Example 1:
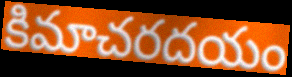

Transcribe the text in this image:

కిమాచరదయం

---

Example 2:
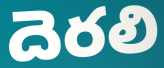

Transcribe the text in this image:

దెరలి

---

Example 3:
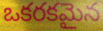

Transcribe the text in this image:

ఒకరకమైన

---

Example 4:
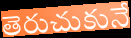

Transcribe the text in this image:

తెరుచుకునే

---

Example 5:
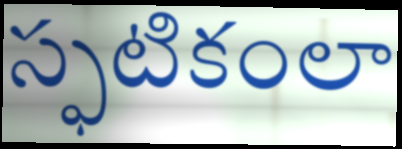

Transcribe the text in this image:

స్ఫటికంలా